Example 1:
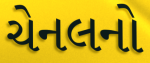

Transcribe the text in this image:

ચેનલનો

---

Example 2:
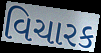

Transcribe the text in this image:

વિચારક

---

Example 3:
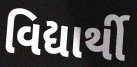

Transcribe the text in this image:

વિદ્યાર્થી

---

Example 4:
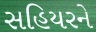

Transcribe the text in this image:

સહિયરને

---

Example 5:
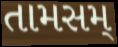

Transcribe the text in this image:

તામસમ્